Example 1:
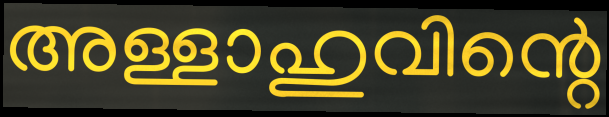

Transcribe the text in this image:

അള്ളാഹുവിന്റെ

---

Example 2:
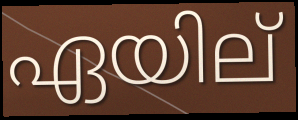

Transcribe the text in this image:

ഏയില്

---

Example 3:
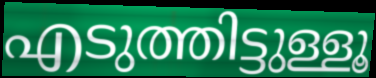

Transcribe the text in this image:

എടുത്തിട്ടുള്ളൂ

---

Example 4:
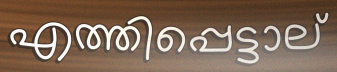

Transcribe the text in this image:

എത്തിപ്പെട്ടാല്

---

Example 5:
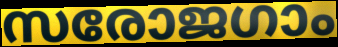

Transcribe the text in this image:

സരോജഗാം